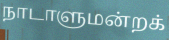
நாடாளுமன்றக்